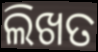
ଲିଖତ